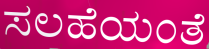
ಸಲಹೆಯಂತೆ